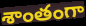
శాంతంగా